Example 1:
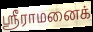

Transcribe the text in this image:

ஸ்ரீராமனைக்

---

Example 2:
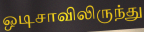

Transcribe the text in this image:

ஒடிசாவிலிருந்து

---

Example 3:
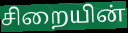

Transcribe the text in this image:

சிறையின்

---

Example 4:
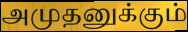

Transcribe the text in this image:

அமுதனுக்கும்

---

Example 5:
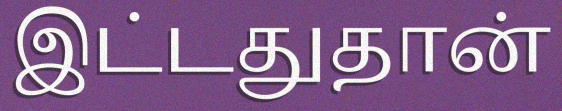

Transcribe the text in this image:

இட்டதுதான்